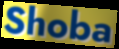
Shoba